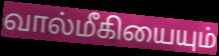
வால்மீகியையும்